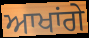
ਆਖਾਂਗੇ